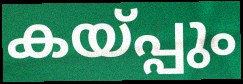
കയ്പ്പും